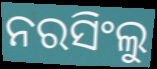
ନରସିଂଲୁ